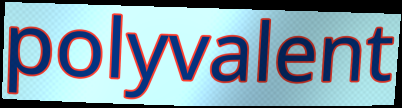
polyvalent